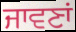
ਜਾਵਣਾਂ